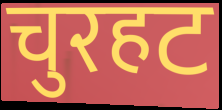
चुरहट